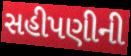
સહીપણીની